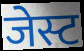
जेस्‍ट